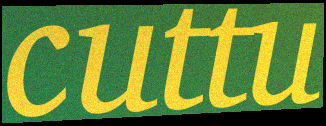
cuttu